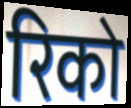
रिको